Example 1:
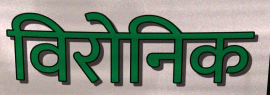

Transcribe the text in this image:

विरोनिक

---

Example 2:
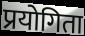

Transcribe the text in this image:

प्रयोगिता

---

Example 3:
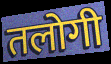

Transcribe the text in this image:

तलोगी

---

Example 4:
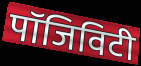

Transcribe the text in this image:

पॉजिविटी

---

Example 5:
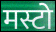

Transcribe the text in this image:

मस्टो